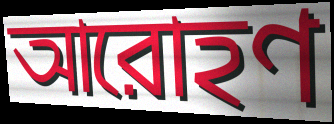
আরোহণ